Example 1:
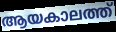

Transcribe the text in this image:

ആയകാലത്ത്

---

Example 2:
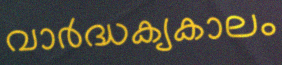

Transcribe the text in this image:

വാർദ്ധക്യകാലം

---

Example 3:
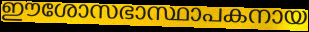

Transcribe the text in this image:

ഈശോസഭാസ്ഥാപകനായ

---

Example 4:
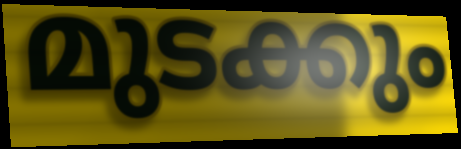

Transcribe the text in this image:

മുടക്കും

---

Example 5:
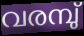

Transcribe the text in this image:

വരമ്പു്